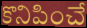
కొనిపించే